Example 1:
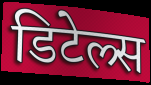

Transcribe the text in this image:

डिटेल्स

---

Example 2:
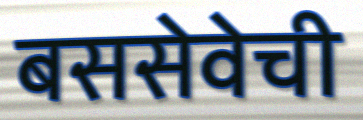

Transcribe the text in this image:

बससेवेची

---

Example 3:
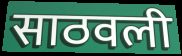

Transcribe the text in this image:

साठवली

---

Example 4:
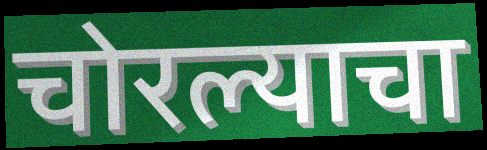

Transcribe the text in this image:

चोरल्याचा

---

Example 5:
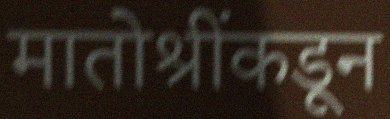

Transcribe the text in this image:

मातोश्रींकडून